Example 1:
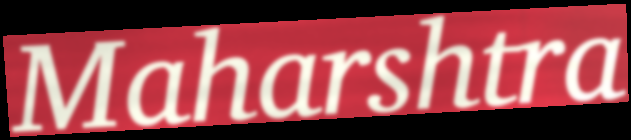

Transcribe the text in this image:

Maharshtra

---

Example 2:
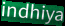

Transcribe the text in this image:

indhiya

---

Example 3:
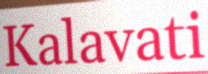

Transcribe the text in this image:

Kalavati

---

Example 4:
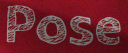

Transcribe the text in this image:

Pose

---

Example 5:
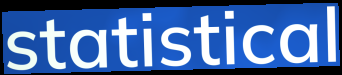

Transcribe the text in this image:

statistical